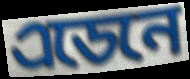
এডেনে